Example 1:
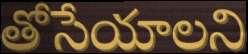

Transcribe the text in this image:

తోసేయాలని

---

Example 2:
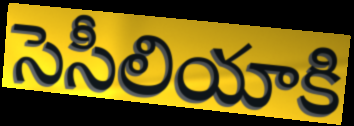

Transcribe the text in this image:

సెసీలియాకి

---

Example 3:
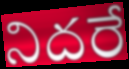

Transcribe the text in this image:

నిదరే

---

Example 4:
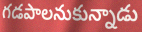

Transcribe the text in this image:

గడపాలనుకున్నాడు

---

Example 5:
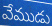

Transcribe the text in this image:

వేముడు